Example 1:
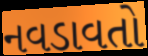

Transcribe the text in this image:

નવડાવતો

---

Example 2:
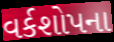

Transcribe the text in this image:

વર્કશોપના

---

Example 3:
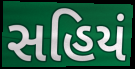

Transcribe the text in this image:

સહિયં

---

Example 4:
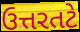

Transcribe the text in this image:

ઉત્તરતટે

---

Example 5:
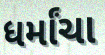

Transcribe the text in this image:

ધર્માંચા